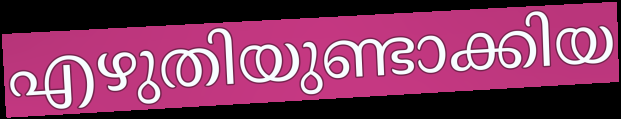
എഴുതിയുണ്ടാക്കിയ